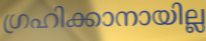
ഗ്രഹിക്കാനായില്ല